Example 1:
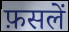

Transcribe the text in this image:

फ़सलें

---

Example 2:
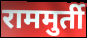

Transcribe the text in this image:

राममुर्ती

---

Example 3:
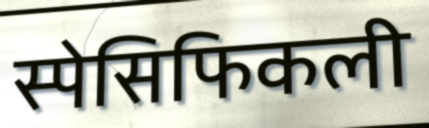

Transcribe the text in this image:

स्पेसिफिकली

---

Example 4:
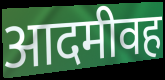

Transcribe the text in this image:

आदमीवह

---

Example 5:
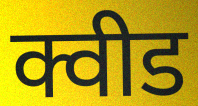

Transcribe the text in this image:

क्वीड